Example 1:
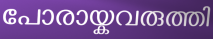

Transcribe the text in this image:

പോരായ്കവരുത്തി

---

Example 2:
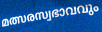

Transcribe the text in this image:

മത്സരസ്വഭാവവും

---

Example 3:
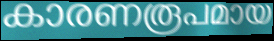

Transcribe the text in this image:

കാരണരൂപമായ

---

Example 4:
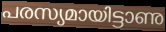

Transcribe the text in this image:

പരസ്യമായിട്ടാണു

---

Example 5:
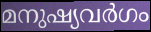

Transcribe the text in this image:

മനുഷ്യവർഗം